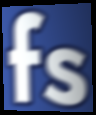
fs